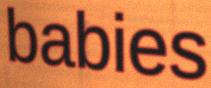
babies